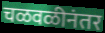
चळवळीनंतर